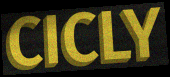
CICLY